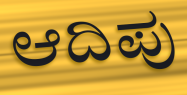
ಆದಿಪು